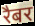
रैबर